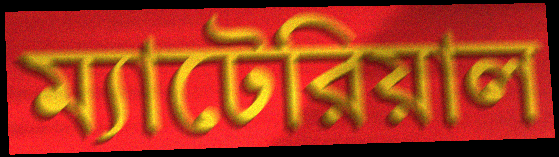
ম্যাটেরিয়াল